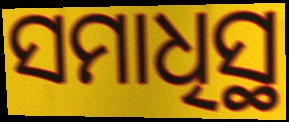
ସମାଧିସ୍ଥ